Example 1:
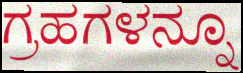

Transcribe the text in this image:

ಗ್ರಹಗಳನ್ನೂ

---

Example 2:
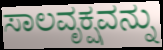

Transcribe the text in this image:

ಸಾಲವೃಕ್ಷವನ್ನು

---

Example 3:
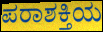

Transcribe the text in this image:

ಪರಾಶಕ್ತಿಯ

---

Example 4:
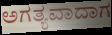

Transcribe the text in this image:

ಅಗತ್ಯವಾದಾಗ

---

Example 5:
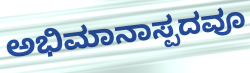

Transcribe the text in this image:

ಅಭಿಮಾನಾಸ್ಪದವೂ